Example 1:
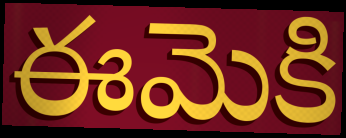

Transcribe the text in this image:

ఈమెకి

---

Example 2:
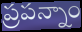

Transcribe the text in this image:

ప్రపన్నాం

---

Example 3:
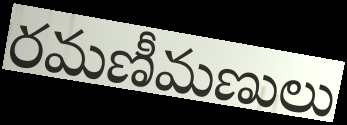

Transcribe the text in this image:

రమణీమణులు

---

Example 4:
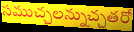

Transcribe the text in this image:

సముచ్చలన్నుచ్చతరో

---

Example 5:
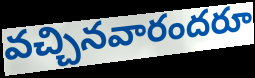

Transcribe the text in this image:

వచ్చినవారందరూ